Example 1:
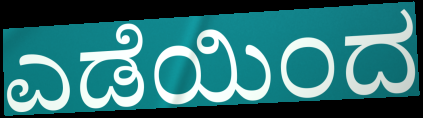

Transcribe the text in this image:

ಎಡೆಯಿಂದ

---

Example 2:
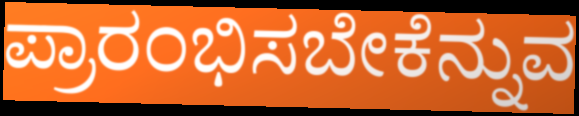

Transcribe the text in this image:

ಪ್ರಾರಂಭಿಸಬೇಕೆನ್ನುವ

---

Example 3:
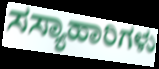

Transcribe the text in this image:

ಸಸ್ಯಾಹಾರಿಗಳು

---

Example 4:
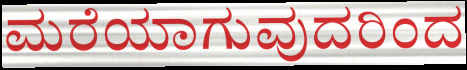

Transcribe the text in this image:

ಮರೆಯಾಗುವುದರಿಂದ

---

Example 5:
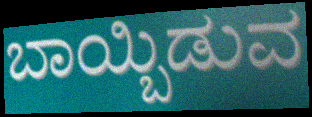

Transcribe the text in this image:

ಬಾಯ್ಬಿಡುವ